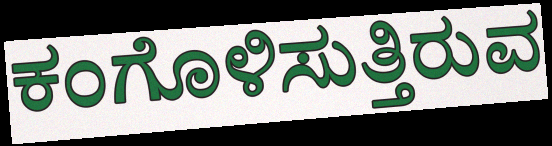
ಕಂಗೊಳಿಸುತ್ತಿರುವ